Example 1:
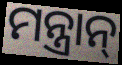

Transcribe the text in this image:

ମନ୍ତ୍ରାନ୍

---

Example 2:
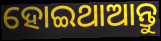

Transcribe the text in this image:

ହୋଇଥାଆନ୍ତୁ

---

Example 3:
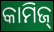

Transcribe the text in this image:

କାମିଜ୍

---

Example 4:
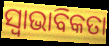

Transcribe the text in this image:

ସ୍ବାଭାବିକତା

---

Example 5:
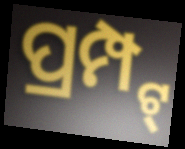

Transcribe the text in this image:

ପ୍ରମ୍ପ୍ଟ୍